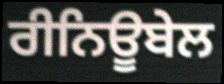
ਰੀਨਿਊਬੇਲ